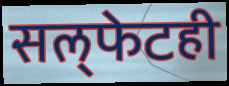
सल्फेटही